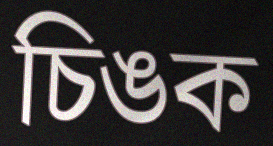
চিঙক